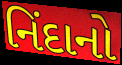
નિંદાનો